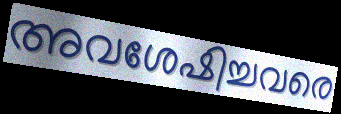
അവശേഷിച്ചവരെ